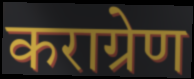
कराग्रेण